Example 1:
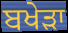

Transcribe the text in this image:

ਬਖੇੜਾ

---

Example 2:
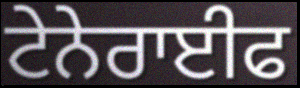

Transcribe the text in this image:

ਟੇਨੇਰਾਈਫ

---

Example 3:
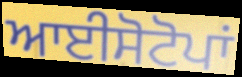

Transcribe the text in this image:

ਆਈਸੋਟੋਪਾਂ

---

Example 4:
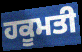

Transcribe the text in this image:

ਹਕੂਮਤੀ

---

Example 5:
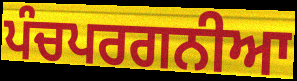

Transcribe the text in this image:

ਪੰਚਪਰਗਨੀਆ